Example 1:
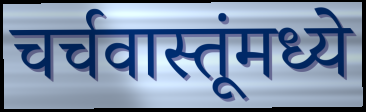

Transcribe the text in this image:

चर्चवास्तूंमध्ये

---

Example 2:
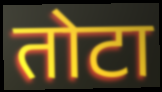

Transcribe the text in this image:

तोटा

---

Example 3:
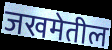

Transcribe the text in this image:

जखमेतील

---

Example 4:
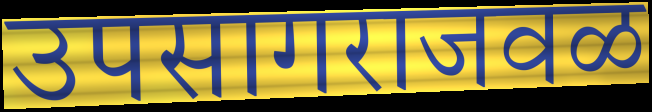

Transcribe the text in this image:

उपसागराजवळ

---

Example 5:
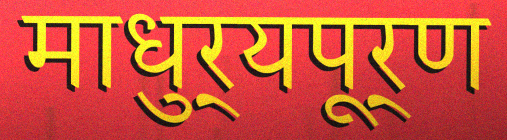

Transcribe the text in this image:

माधुर्यपूर्ण